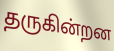
தருகின்றன